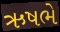
ઋષભે